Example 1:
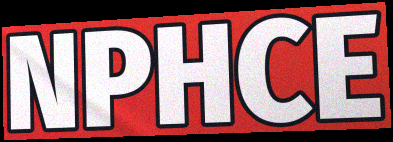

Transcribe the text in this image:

NPHCE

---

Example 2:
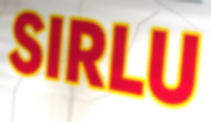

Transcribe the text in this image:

SIRLU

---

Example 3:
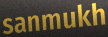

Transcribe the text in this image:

sanmukh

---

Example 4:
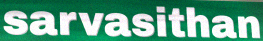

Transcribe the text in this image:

sarvasithan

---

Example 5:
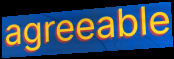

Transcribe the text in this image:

agreeable